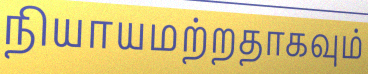
நியாயமற்றதாகவும்